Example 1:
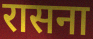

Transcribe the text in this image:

रासना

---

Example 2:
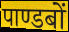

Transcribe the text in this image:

पाण्डबों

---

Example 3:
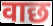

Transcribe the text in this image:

वाछ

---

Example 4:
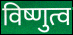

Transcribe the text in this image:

विष्णुत्व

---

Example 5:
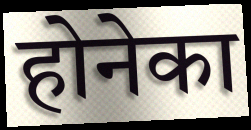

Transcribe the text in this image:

होनेका